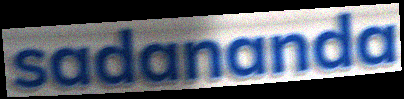
sadananda